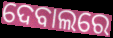
ଦେବାଲରେ